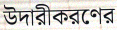
উদারীকরণের